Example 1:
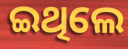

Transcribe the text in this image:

ଇଥିଲେ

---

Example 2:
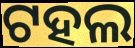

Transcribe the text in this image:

ଟହଲ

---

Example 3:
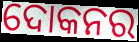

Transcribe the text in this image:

ଦୋକନର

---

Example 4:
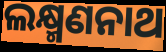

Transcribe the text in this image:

ଲକ୍ଷ୍ମଣନାଥ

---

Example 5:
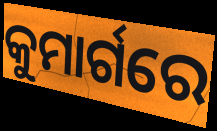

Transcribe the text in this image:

କୁମାର୍ଗରେ